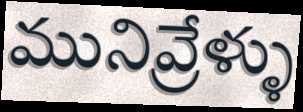
మునివ్రేళ్ళు